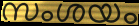
സംശയം